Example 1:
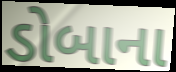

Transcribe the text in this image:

ડોબાના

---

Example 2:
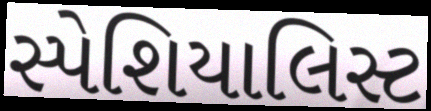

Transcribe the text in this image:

સ્પેશિયાલિસ્ટ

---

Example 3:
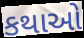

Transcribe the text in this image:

કથાઓ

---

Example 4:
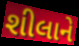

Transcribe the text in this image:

શીલાને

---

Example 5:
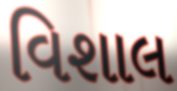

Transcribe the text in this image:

વિશાલ